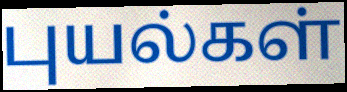
புயல்கள்